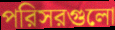
পরিসরগুলো